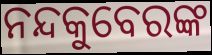
ନନ୍ଦକୁବେରଙ୍କ